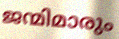
ജന്മിമാരും